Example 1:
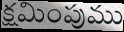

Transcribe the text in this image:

క్షమింపుము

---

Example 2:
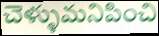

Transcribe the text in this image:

చెళ్ళుమనిపించి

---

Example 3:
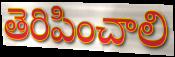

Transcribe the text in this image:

తెరిపించాలి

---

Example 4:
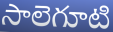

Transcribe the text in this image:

సాలెగూటి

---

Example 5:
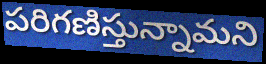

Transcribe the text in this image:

పరిగణిస్తున్నామని